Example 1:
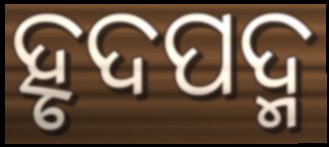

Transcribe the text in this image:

ହୃଦପଦ୍ମ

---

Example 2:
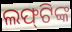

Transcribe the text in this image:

ଲଫ୍‌ଟିଙ୍କ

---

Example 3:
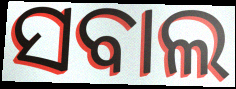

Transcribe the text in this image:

ସବାଲ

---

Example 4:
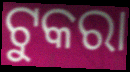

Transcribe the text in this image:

ଟୁକରା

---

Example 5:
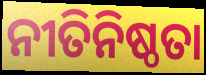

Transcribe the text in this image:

ନୀତିନିଷ୍ଠତା